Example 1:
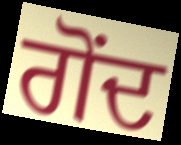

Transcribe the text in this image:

ਗੋਂਦ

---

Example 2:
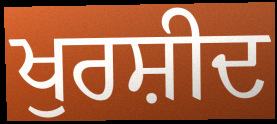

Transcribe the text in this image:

ਖੁਰਸ਼ੀਦ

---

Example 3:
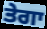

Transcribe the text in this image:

ਤੇਗਾ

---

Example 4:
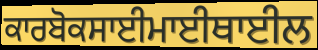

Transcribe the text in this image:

ਕਾਰਬੋਕਸਾਈਮਾਈਥਾਈਲ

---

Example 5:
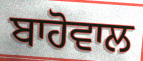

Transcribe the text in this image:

ਬਾਹੋਵਾਲ